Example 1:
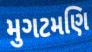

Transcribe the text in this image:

મુગટમણિ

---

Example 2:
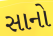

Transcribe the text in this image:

સાનો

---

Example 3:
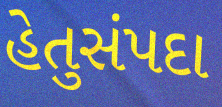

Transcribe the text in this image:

હેતુસંપદા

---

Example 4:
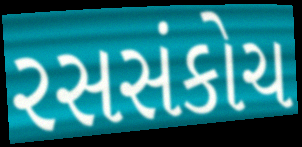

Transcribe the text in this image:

રસસંકોચ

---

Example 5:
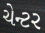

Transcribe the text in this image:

ચેન્ટર